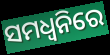
ସମଧ୍ୱନିରେ